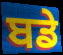
ਬਡੇ